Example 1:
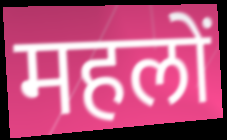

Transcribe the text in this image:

महलों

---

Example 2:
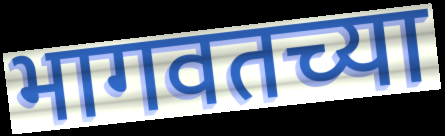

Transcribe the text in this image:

भागवतच्या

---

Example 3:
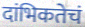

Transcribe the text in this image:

दांभिकतेचं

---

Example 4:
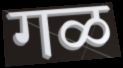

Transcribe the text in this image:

गळ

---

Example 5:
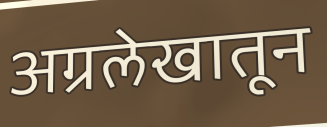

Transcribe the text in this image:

अग्रलेखातून